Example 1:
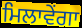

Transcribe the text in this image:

ਮਿਲਾਵੇਂਗਾ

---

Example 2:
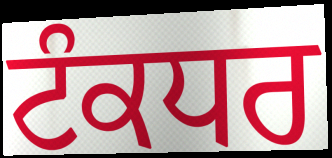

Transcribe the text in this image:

ਟੰਕਧਰ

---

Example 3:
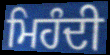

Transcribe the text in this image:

ਮਿਹੰਦੀ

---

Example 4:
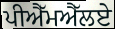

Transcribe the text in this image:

ਪੀਐੱਮਐੱਲਏ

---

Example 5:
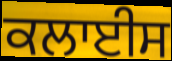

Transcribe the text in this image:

ਕਲਾਈਸ